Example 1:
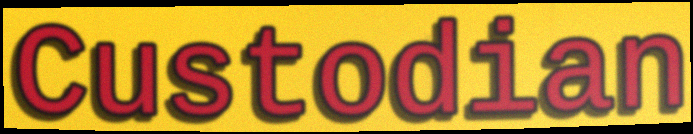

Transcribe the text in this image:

Custodian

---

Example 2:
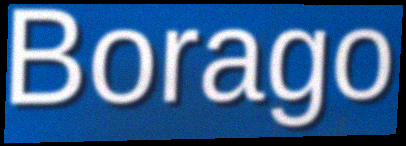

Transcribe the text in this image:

Borago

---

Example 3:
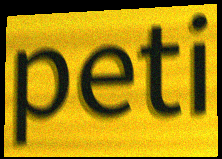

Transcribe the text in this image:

peti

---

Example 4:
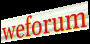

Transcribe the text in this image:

weforum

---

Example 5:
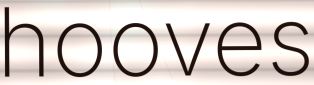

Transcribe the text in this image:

hooves